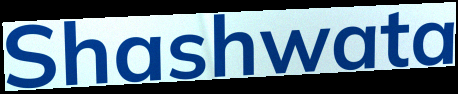
Shashwata